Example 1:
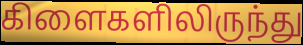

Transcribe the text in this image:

கிளைகளிலிருந்து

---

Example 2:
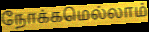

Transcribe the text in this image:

நோக்கமெல்லாம்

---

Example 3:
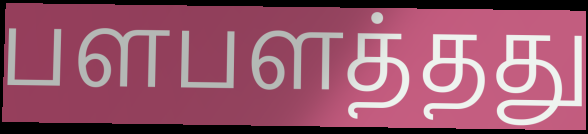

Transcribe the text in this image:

பளபளத்தது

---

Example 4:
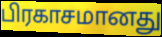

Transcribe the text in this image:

பிரகாசமானது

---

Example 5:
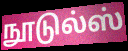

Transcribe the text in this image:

நூடுல்ஸ்